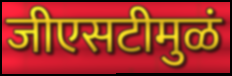
जीएसटीमुळं